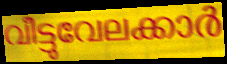
വീട്ടുവേലക്കാർ